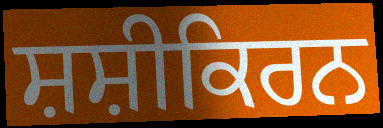
ਸ਼ਸ਼ੀਕਿਰਨ